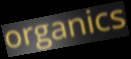
organics